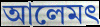
আলেমৎ